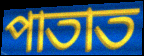
পাতাত